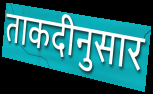
ताकदीनुसार